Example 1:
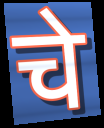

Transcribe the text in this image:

चे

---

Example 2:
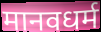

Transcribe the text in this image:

मानवधर्म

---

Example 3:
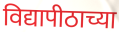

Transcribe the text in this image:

विद्यापीठाच्या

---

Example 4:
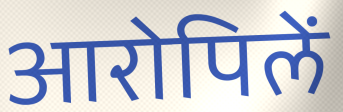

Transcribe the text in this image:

आरोपिलें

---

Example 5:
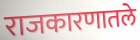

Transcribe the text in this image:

राजकारणातले